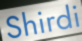
Shirdi